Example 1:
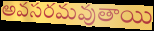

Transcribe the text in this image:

అవసరమవుతాయి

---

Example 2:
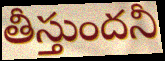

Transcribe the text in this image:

తీస్తుందనీ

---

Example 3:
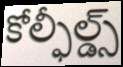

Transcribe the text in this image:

కోల్ఫీల్డ్స్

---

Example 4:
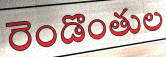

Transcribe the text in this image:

రెండొంతుల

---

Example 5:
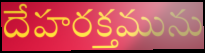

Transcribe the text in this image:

దేహరక్తమును